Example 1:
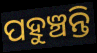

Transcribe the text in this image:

ପହୁଞ୍ଚନ୍ତି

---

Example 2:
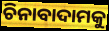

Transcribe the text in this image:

ଚିନାବାଦାମକୁ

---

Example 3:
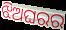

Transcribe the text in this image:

ଝିଅଘରର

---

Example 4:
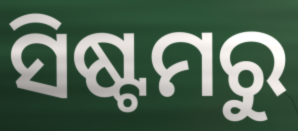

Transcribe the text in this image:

ସିଷ୍ଟମରୁ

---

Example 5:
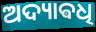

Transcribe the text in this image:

ଅଦ୍ୟାଵଧି